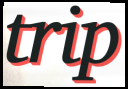
trip